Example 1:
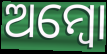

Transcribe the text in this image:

ଅମ୍ୱୋ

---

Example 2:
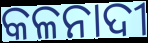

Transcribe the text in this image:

କଳନାଦୀ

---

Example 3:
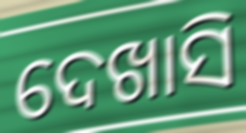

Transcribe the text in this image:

ଦେଖାସି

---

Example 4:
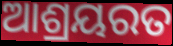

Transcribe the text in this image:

ଆଶ୍ରୟରତ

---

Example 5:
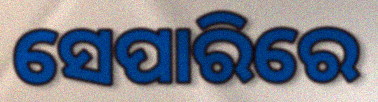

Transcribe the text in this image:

ସେପାରିରେ